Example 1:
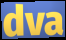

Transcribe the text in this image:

dva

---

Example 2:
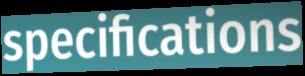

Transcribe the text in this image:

specifications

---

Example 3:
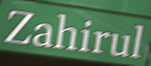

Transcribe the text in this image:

Zahirul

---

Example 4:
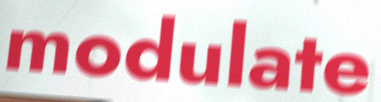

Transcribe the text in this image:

modulate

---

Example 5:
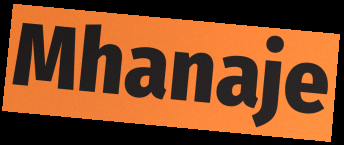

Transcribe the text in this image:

Mhanaje